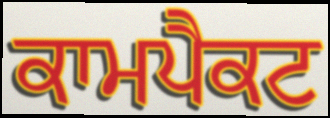
ਕਾਮਪੈਕਟ